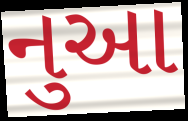
નુઆ